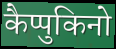
कैप्पुकिनो